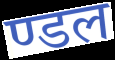
ण्डल